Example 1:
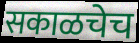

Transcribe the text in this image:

सकाळचेच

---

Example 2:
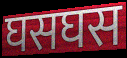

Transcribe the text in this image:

घसघस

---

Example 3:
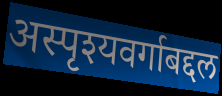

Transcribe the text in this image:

अस्पृश्यवर्गाबद्दल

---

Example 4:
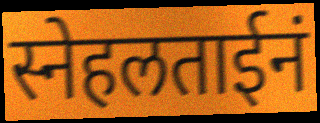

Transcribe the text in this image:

स्नेहलताईनं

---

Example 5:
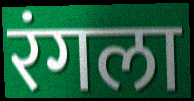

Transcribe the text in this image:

रंगला